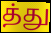
த்து